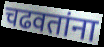
चढवतांना